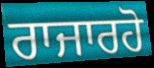
ਰਾਜਾਰਹੋ